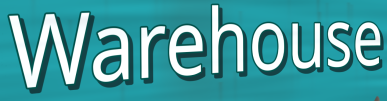
Warehouse